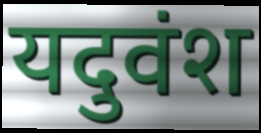
यदुवंश